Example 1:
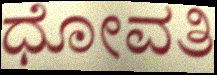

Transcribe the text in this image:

ಧೋವತಿ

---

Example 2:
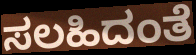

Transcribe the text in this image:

ಸಲಹಿದಂತೆ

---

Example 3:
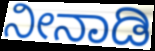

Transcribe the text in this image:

ನೀನಾಡಿ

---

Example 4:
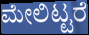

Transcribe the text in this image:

ಮೇಲಿಟ್ಟರೆ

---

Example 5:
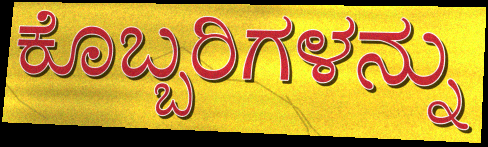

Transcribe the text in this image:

ಕೊಬ್ಬರಿಗಳನ್ನು